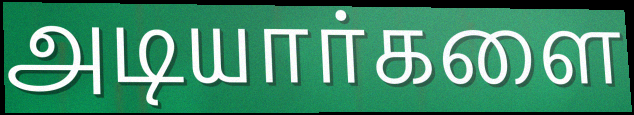
அடியார்களை